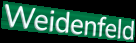
Weidenfeld